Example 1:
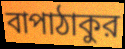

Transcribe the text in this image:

বাপাঠাকুর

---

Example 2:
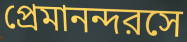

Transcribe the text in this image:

প্রেমানন্দরসে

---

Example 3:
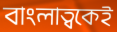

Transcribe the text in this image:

বাংলাত্বকেই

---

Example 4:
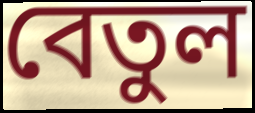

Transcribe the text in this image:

বেতুল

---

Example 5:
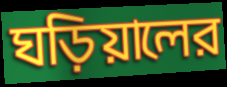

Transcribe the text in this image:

ঘড়িয়ালের